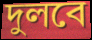
দুলবে